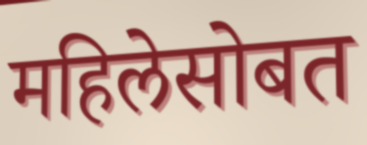
महिलेसोबत